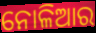
ନୋଳିଆର